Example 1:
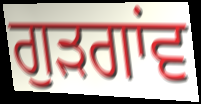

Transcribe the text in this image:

ਗੁੜਗਾਂਵ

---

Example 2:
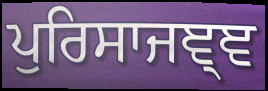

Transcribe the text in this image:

ਪੁਰਿਸਾਜਞ੍ਞ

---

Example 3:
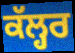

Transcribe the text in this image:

ਕੱਲ੍ਹਰ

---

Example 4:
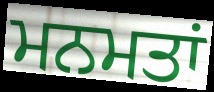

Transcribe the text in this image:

ਮਨਮਤਾਂ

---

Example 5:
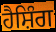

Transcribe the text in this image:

ਹੈਸ਼ਿੰਗ